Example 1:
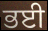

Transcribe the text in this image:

ਭਈ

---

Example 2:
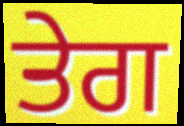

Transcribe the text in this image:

ਤੇਗ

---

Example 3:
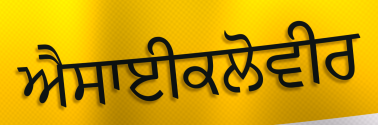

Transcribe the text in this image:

ਐਸਾਈਕਲੋਵੀਰ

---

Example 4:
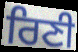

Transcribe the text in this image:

ਰਿਣੀ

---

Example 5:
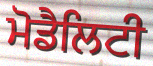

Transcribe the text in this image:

ਮੋਡੈਲਿਟੀ